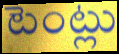
టెంట్లు